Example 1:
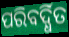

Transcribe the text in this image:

ପରିବର୍ଦ୍ଧିତ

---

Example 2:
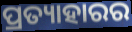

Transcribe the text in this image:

ପ୍ରତ୍ୟାହାରର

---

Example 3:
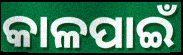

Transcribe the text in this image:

କାଳପାଇଁ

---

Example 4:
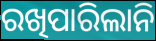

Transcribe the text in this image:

ରଖିପାରିଲାନି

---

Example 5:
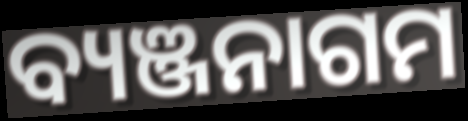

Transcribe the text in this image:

ବ୍ୟଞ୍ଜନାଗମ